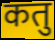
कतु